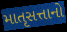
માતૃસત્તાનો